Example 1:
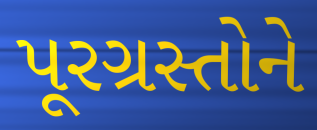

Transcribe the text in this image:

પૂરગ્રસ્તોને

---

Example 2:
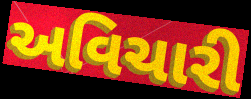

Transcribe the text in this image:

અવિચારી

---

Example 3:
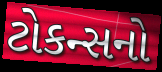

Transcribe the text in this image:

ટોકન્સનો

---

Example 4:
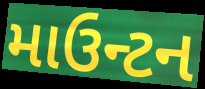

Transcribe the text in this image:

માઉન્ટન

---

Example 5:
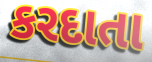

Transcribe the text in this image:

કરદાતા